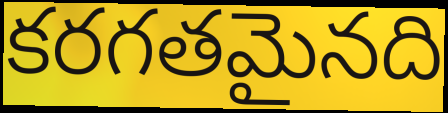
కరగతమైనది